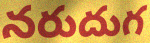
నరుదుగ